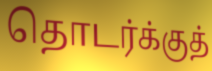
தொடர்க்குத்